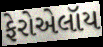
ફેરોએલૉય